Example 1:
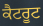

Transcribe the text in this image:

ਕੈਟਰੂਟ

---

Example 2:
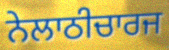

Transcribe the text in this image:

ਨੇਲਾਠੀਚਾਰਜ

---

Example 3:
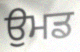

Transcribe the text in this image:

ਉਮਡ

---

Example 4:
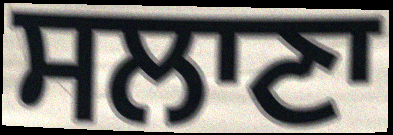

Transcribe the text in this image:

ਸਲਾਣਾ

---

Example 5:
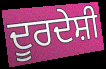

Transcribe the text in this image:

ਦੂਰਦੇਸ਼ੀ